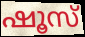
ഷൂസ്